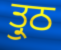
ਤ੍ਰੁਠ